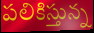
పలికిస్తున్న